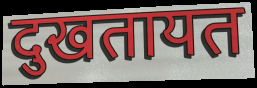
दुखतायत